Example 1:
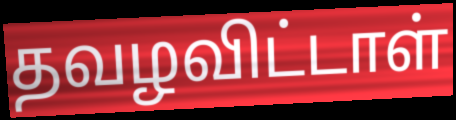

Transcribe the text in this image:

தவழவிட்டாள்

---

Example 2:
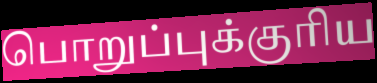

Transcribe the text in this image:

பொறுப்புக்குரிய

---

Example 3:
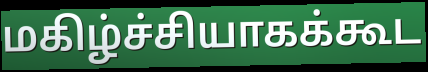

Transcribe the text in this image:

மகிழ்ச்சியாகக்கூட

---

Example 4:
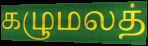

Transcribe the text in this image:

கழுமலத்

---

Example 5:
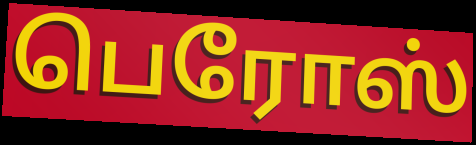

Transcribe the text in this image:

பெரோஸ்